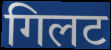
गिलट